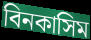
বিনকাসিম